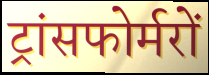
ट्रांसफोर्मरों